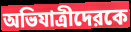
অভিযাত্রীদেরকে